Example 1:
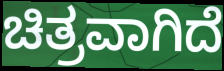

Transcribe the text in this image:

ಚಿತ್ರವಾಗಿದೆ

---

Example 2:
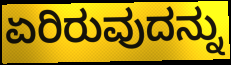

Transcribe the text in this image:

ಏರಿರುವುದನ್ನು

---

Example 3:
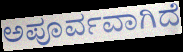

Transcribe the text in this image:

ಅಪೂರ್ವವಾಗಿದೆ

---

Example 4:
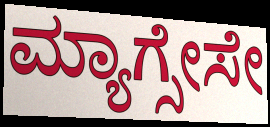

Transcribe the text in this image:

ಮ್ಯಾಗ್ಸೇಸೇ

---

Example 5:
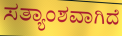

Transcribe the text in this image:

ಸತ್ಯಾಂಶವಾಗಿದೆ